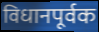
विधानपूर्वक